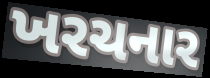
ખરચનાર